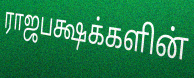
ராஜபக்ஷக்களின்